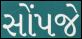
સોંપજે